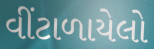
વીંટાળાયેલો